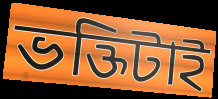
ভক্তিটাই